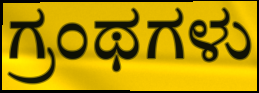
ಗ್ರಂಥಗಳು